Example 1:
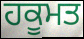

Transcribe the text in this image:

ਹਕੂਮਤ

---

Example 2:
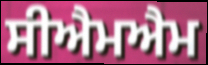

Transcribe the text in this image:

ਸੀਐਮਐਮ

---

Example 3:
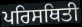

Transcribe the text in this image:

ਪਰਿਸਥਿਤੀ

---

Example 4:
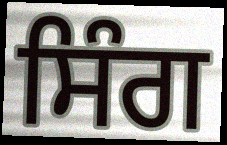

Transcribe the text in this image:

ਸਿੰਗ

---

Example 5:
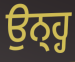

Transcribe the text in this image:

ਉਨ੍ਹ੍ਹ